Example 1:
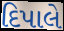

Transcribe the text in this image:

દિપાલે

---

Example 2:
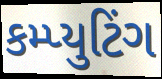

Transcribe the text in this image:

કમ્પ્યુટિંગ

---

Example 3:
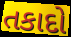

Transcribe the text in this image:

તકાદો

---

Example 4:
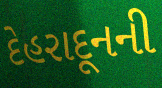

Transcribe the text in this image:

દેહરાદૂનની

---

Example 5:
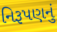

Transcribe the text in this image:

નિરૂપણનું